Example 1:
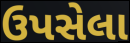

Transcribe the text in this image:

ઉપસેલા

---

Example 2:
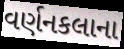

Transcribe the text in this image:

વર્ણનકલાના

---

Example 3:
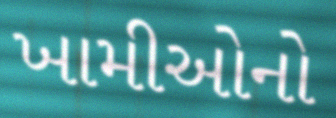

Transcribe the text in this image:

ખામીઓનો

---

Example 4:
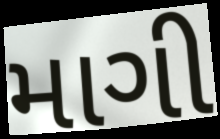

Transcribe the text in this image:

માગી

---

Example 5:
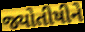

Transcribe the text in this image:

જ્યોતીષીને